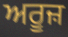
ਅਰੂਜ਼